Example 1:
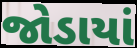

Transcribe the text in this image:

જોડાયાં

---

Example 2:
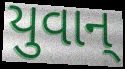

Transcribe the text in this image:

યુવાન્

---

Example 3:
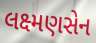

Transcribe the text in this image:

લક્ષ્મણસેન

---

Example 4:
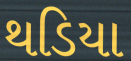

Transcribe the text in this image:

થડિયા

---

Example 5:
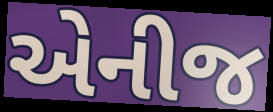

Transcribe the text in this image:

એનીજ